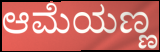
ಆಮೆಯಣ್ಣ